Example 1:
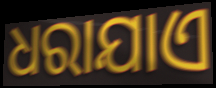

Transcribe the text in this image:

ଧରାଯାଏ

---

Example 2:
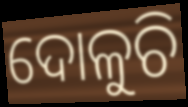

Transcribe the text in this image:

ଦୋଳୁଚି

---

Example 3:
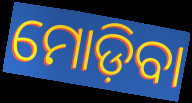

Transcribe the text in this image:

ମୋଡ଼ିବା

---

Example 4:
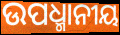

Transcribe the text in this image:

ଉପଧ୍ମାନୀୟ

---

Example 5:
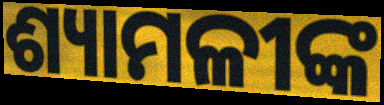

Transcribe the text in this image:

ଶ୍ୟାମଳୀଙ୍କ